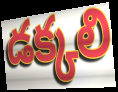
డక్కలి